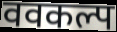
ववकल्प